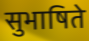
सुभाषिते